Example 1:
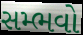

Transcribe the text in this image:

સમ્ભવો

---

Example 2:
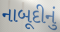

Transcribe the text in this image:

નાબૂદીનું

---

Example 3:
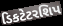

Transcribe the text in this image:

ડિકટેટરશિપ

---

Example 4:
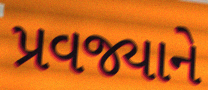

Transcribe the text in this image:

પ્રવજ્યાને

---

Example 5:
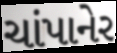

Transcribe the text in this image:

ચાંપાનેર